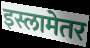
इस्लामेतर